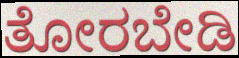
ತೋರಬೇಡಿ